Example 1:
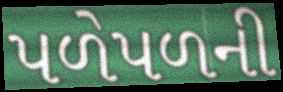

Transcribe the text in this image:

પળેપળની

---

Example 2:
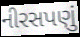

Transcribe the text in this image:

નીરસપણું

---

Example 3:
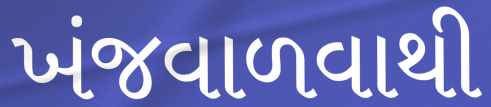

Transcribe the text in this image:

ખંજવાળવાથી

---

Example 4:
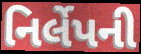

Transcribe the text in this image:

નિર્લેપની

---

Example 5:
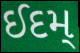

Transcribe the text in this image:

ઈદમ્